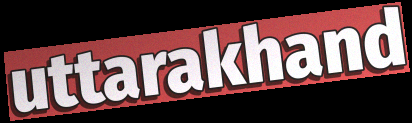
uttarakhand